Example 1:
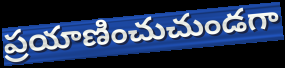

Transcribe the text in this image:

ప్రయాణించుచుండగా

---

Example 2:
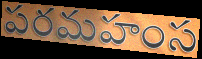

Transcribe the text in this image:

పరమహంస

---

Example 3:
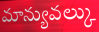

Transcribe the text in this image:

మాన్యువల్కు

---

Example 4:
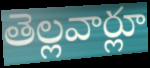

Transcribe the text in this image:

తెల్లవార్లూ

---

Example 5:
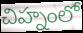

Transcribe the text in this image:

చిహ్నంలో